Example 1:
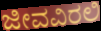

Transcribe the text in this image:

ಜೀವವಿರಲಿ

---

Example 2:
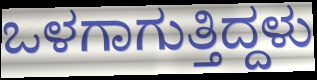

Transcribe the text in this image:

ಒಳಗಾಗುತ್ತಿದ್ದಳು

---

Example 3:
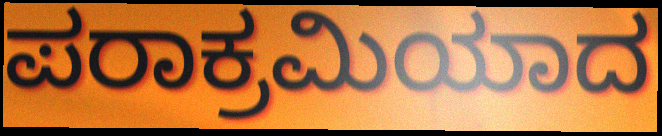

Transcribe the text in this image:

ಪರಾಕ್ರಮಿಯಾದ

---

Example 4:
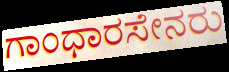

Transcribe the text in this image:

ಗಾಂಧಾರಸೇನರು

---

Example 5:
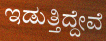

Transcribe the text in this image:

ಇಡುತ್ತಿದ್ದೇವೆ